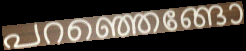
പറഞ്ഞെങ്ങോ